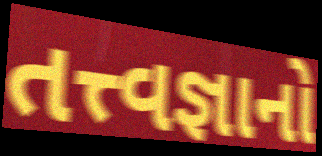
તત્ત્વજ્ઞાનો